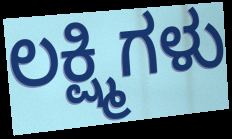
ಲಕ್ಷ್ಮಿಗಳು